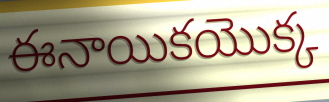
ఈనాయికయొక్క